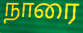
நாரை